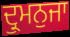
ਦ੍ਰੁਮਨੁਜਾ